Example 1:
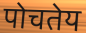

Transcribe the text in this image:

पोचतेय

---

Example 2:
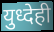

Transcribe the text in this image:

युध्देही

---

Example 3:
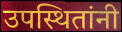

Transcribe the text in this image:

उपस्थितांनी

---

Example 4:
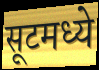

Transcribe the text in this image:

सूटमध्ये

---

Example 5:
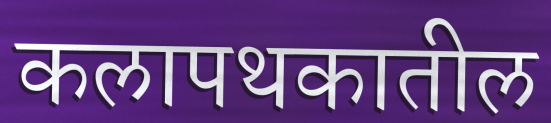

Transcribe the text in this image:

कलापथकातील